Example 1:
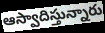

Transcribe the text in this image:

ఆస్వాదిస్తున్నారు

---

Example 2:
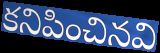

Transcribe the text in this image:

కనిపించినవి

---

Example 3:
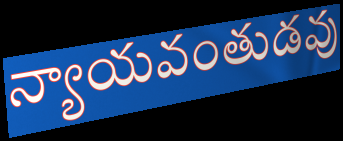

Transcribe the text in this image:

న్యాయవంతుడవు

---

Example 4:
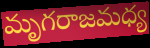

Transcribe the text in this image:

మృగరాజమధ్య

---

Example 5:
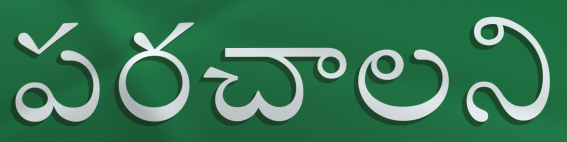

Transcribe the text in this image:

పరచాలని